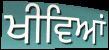
ਖੀਵਿਆਂ